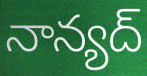
నాన్యద్